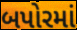
બપોરમાં